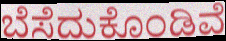
ಬೆಸೆದುಕೊಂಡಿವೆ